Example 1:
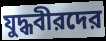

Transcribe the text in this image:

যুদ্ধবীরদের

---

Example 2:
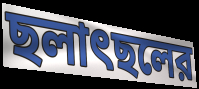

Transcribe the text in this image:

ছলাৎছলের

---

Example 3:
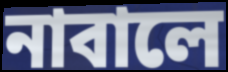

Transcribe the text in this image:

নাবালে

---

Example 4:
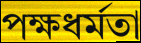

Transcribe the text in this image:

পক্ষধর্মতা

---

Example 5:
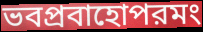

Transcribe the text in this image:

ভবপ্রবাহোপরমং